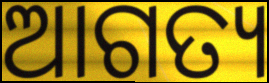
ଆଗତ୍ୟ